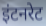
इंटनरेट